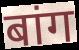
बांग